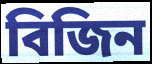
বিজিন